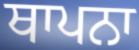
ਥਾਪਨਾ